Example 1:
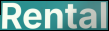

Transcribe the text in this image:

Rental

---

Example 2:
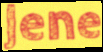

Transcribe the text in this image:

Jene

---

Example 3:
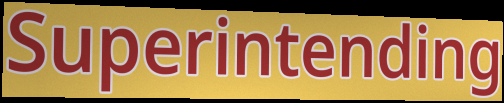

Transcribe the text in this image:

Superintending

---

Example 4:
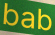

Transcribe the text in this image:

bab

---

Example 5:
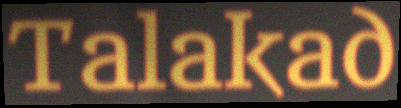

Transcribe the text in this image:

Talakad